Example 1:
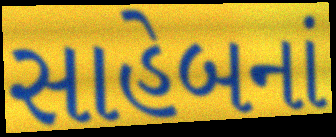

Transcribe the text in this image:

સાહેબનાં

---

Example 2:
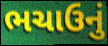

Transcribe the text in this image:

ભચાઉનું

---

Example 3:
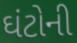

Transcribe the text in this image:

ઘંટોની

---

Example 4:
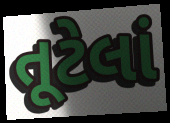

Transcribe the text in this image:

તૂટેલાં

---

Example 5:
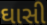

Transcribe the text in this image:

ઘાસી